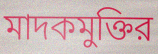
মাদকমুক্তির